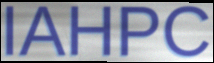
IAHPC